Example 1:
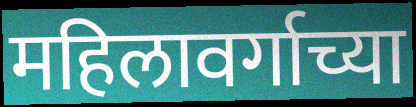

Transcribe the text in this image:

महिलावर्गाच्या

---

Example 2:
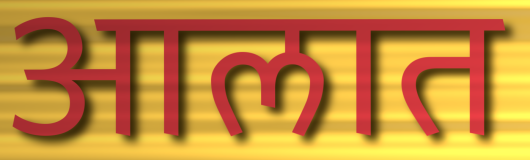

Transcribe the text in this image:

आलात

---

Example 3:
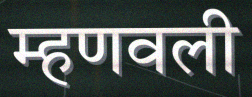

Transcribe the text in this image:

म्हणवली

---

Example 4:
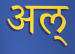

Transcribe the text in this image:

अल्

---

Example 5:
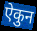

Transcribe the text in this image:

ऐकुन